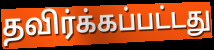
தவிர்க்கப்பட்டது